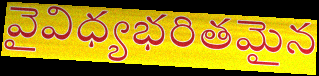
వైవిధ్యభరితమైన